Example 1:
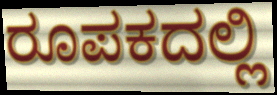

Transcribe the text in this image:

ರೂಪಕದಲ್ಲಿ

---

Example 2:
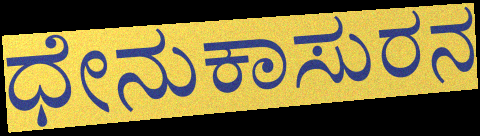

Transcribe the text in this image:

ಧೇನುಕಾಸುರನ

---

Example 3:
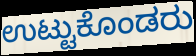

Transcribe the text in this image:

ಉಟ್ಟುಕೊಂಡರು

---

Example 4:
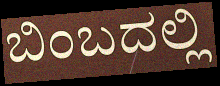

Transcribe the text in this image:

ಬಿಂಬದಲ್ಲಿ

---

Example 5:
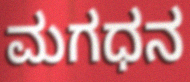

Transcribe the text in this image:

ಮಗಧನ